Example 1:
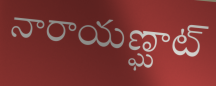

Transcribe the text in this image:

నారాయణ్ఘాట్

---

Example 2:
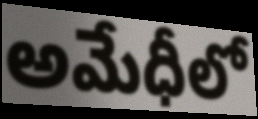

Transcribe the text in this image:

అమేధీలో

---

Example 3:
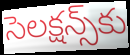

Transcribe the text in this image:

సెలక్షన్స్‌కు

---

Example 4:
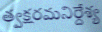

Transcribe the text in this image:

త్వక్షరమనిర్దేశ్య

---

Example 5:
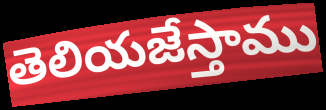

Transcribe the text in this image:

తెలియజేస్తాము